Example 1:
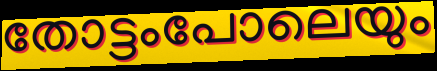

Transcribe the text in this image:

തോട്ടംപോലെയും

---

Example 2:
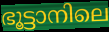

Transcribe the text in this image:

ഭൂട്ടാനിലെ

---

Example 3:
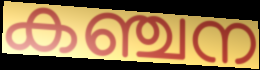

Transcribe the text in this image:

കഞ്ചന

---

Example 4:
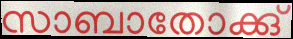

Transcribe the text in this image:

സാബാതോക്കു്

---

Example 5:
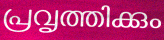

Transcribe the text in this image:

പ്രവൃത്തിക്കും